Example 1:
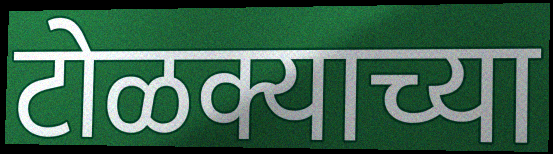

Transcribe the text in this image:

टोळक्याच्या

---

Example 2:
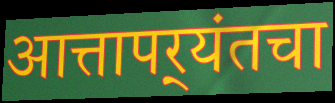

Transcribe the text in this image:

आत्तापर्यंतचा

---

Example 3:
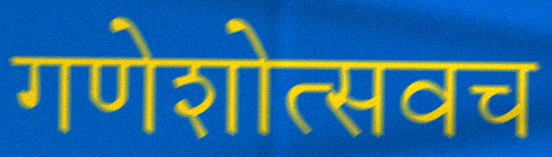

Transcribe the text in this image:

गणेशोत्सवच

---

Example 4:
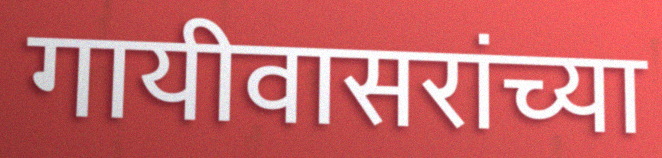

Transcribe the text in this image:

गायीवासरांच्या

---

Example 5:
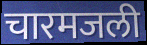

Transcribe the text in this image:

चारमजली